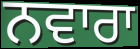
ਨਵਾਰਾ